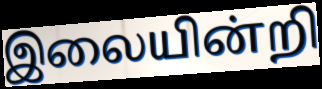
இலையின்றி